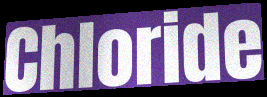
Chloride